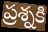
ప్రశ్నకి